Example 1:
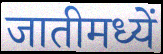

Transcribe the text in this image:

जातीमध्यें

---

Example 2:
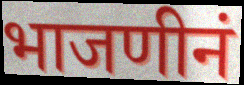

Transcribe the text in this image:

भाजणीनं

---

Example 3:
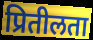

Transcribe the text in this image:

प्रितीलता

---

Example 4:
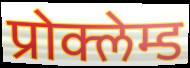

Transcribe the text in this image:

प्रोक्लेम्ड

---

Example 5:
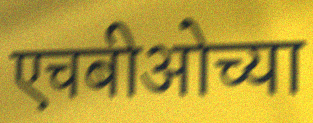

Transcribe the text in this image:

एचबीओच्या